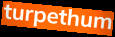
turpethum